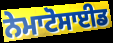
ਨੇਮਾਟੋਸਾਈਡ